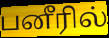
பனீரில்